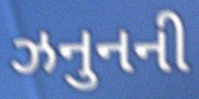
ઝનુનની